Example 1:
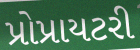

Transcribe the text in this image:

પ્રોપ્રાયટરી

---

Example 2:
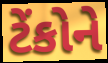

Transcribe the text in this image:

ટેંકોને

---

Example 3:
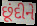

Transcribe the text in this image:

છૂંદીને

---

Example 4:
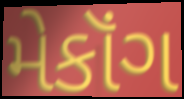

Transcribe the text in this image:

મેકૉંગ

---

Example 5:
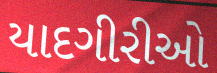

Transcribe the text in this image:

યાદગીરીઓ